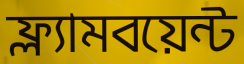
ফ্ল্যামবয়েন্ট